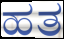
ಹತ